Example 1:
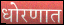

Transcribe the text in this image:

धोरणात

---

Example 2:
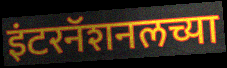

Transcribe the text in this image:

इंटरनॅशनलच्या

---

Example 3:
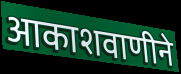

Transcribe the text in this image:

आकाशवाणीने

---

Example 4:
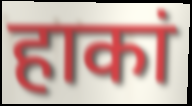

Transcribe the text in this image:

हाकां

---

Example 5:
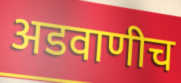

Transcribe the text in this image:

अडवाणीच